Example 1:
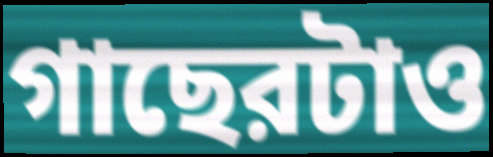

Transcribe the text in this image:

গাছেরটাও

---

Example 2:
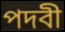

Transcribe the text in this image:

পদবী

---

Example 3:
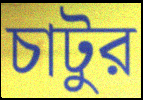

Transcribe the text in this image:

চাটুর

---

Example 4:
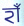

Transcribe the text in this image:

হাঁ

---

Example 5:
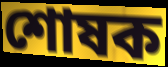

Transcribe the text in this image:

শোষক